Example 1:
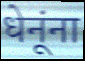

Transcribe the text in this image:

धेनूंना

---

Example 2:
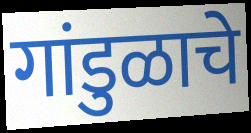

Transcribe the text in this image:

गांडुळाचे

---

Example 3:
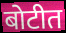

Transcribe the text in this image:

बोटीत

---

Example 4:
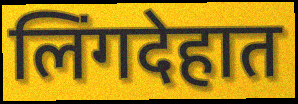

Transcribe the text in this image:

लिंगदेहात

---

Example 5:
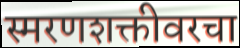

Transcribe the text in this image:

स्मरणशक्तीवरचा